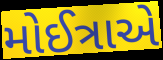
મોઈત્રાએ